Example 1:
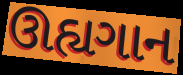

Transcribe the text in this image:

ઊહ્યગાન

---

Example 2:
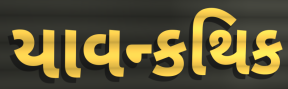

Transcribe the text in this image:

યાવન્કથિક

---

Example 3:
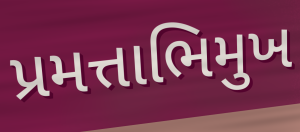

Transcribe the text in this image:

પ્રમત્તાભિમુખ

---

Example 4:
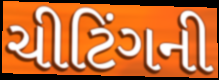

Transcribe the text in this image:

ચીટિંગની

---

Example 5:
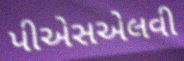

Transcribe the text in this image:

પીએસએલવી